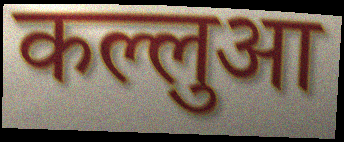
कल्लुआ